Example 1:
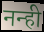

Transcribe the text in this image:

नन्ही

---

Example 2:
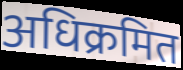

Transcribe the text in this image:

अधिक्रमित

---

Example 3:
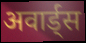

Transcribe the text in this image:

अवार्ड्स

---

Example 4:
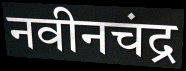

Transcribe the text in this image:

नवीनचंद्र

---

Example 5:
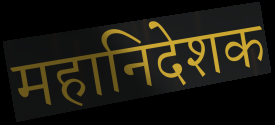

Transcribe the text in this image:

महानिदेशक